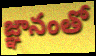
జ్ఞానంతో